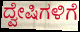
ದ್ವೇಷಿಗಳಿಗೆ